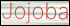
Jojoba